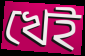
খেই